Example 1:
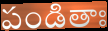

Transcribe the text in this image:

పండితాః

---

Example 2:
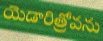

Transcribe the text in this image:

యెడారిత్రోవను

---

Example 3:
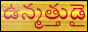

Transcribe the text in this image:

ఉన్మత్తుడై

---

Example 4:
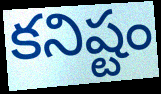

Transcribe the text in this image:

కనిష్టం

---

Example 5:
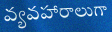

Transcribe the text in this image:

వ్యవహారాలుగా